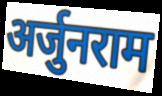
अर्जुनराम